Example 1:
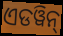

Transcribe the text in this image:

ଏଡୱିନ୍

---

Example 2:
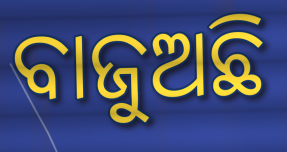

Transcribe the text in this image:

ବାଜୁଅଛି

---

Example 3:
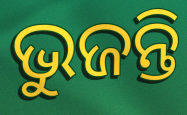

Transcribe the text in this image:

ଭୁଜନ୍ତି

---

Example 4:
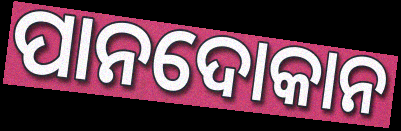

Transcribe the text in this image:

ପାନଦୋକାନ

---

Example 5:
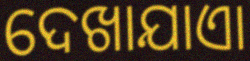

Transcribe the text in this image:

ଦେଖାଯାଏା